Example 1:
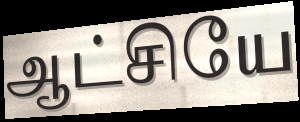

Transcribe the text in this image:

ஆட்சியே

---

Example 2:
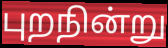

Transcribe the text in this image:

புறநின்று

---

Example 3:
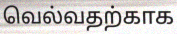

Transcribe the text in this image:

வெல்வதற்காக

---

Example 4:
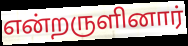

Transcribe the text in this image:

என்றருளினார்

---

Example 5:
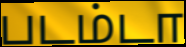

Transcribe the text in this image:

படம்டா